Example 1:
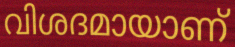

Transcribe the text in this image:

വിശദമായാണ്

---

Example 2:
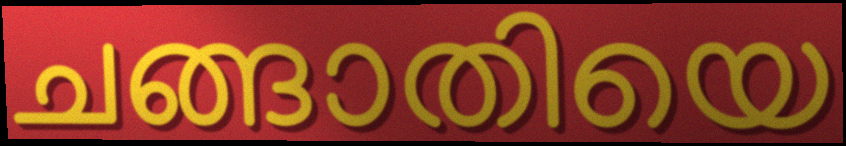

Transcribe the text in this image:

ചങ്ങാതിയെ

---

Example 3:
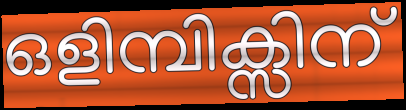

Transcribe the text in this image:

ഒളിമ്പിക്സിന്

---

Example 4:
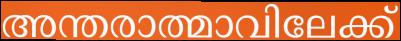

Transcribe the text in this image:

അന്തരാത്മാവിലേക്ക്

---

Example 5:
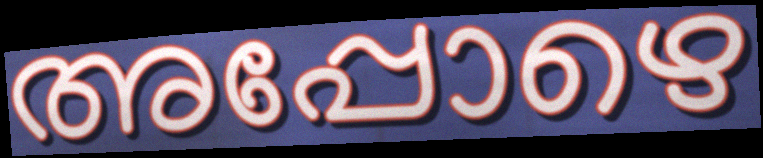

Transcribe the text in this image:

അപ്പോഴെ